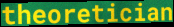
theoretician